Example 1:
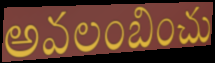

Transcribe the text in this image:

అవలంబించు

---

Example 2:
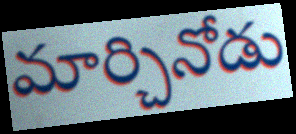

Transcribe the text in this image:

మార్చినోడు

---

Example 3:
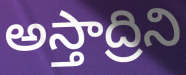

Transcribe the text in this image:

అస్తాద్రిని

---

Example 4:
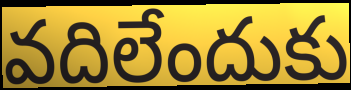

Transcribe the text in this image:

వదిలేందుకు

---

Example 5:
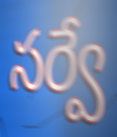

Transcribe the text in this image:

సర్వే